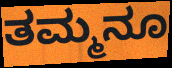
ತಮ್ಮನೂ